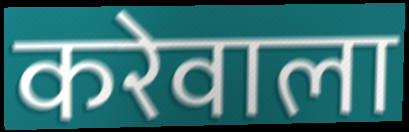
करेवाला